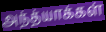
அந்த்யாக்கள்